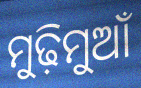
ମୁଢ଼ିମୁଆଁ